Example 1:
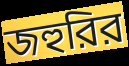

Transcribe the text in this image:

জহুরির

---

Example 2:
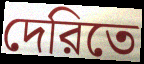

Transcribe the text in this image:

দেরিতে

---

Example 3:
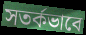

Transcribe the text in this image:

সতর্কভাবে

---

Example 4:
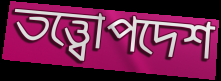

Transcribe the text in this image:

তত্ত্বোপদেশ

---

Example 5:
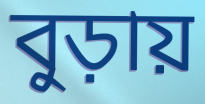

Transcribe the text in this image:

বুড়ায়